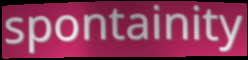
spontainity